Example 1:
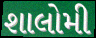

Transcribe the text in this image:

શાલોમી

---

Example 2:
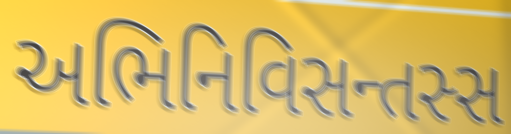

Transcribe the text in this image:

અભિનિવિસન્તસ્સ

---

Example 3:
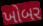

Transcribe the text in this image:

ખોબર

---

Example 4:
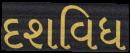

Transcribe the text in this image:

દશવિધ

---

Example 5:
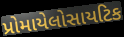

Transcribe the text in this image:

પ્રોમાયેલોસાયટિક